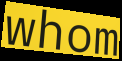
whom